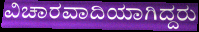
ವಿಚಾರವಾದಿಯಾಗಿದ್ದರು